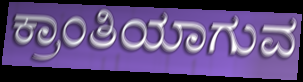
ಕ್ರಾಂತಿಯಾಗುವ